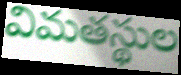
విమతస్థుల